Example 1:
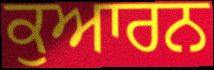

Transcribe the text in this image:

ਕੁਆਰਨ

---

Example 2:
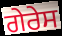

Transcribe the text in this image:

ਗੇਰੇਸ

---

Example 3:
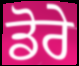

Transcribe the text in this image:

ਡੋਰੇ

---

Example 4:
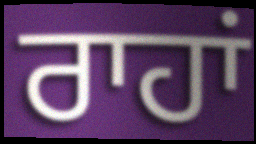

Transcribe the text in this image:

ਰਾਹਾਂ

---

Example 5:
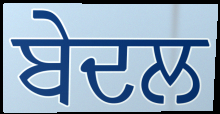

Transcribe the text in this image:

ਬੇਦਲ